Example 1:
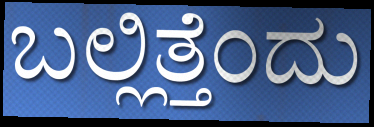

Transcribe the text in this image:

ಬಲ್ಲಿತ್ತೆಂದು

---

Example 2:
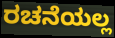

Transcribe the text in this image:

ರಚನೆಯಲ್ಲ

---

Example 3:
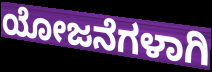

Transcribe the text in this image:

ಯೋಜನೆಗಳಾಗಿ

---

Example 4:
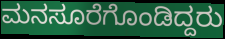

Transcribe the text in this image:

ಮನಸೂರೆಗೊಂಡಿದ್ದರು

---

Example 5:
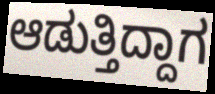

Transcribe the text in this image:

ಆಡುತ್ತಿದ್ದಾಗ